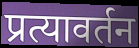
प्रत्यावर्तन